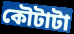
কৌটাটা